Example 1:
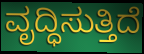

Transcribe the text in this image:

ವೃದ್ಧಿಸುತ್ತಿದೆ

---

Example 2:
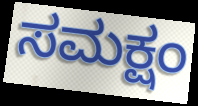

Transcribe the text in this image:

ಸಮಕ್ಷಂ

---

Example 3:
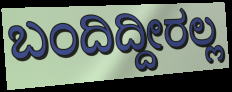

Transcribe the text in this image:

ಬಂದಿದ್ದೀರಲ್ಲ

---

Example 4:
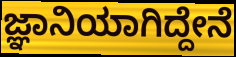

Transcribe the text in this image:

ಜ್ಞಾನಿಯಾಗಿದ್ದೇನೆ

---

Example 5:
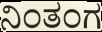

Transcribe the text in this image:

ನಿಂತಂಗ